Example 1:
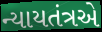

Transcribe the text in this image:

ન્યાયતંત્રએ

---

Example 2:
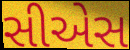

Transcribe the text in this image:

સીએસ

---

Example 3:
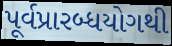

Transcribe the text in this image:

પૂર્વપ્રારબ્ધયોગથી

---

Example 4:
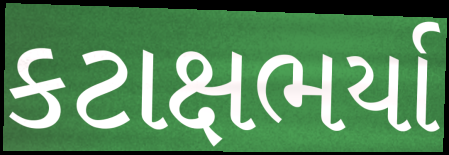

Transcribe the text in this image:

કટાક્ષભર્યા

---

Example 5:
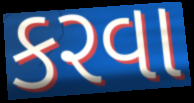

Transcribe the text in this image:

કરવા